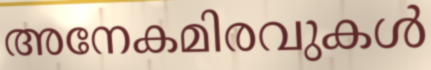
അനേകമിരവുകൾ